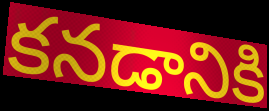
కనడానికి